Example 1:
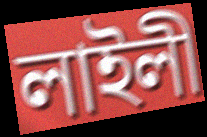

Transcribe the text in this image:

লাইলী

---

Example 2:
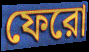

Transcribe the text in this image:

ফেরো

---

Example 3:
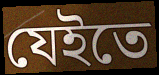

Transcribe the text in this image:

যেইতে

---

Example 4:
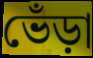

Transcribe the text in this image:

ভেঁড়া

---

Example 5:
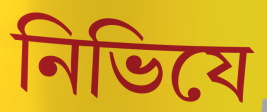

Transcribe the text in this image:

নিভিযে